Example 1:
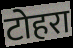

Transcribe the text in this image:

टोहरा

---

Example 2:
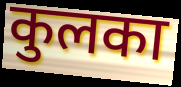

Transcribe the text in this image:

कुलका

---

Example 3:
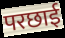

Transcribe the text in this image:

परछाई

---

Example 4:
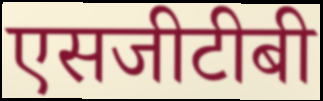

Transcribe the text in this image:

एसजीटीबी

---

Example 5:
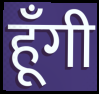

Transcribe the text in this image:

हूँगी